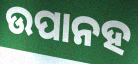
ଉପାନହ